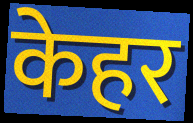
केहर